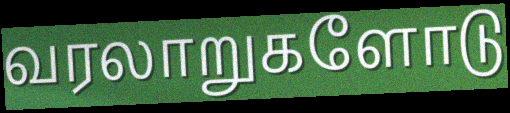
வரலாறுகளோடு